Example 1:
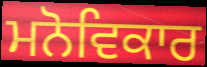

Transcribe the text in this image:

ਮਨੋਵਿਕਾਰ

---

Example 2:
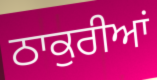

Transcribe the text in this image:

ਠਾਕੁਰੀਆਂ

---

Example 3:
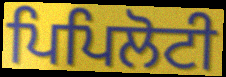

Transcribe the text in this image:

ਪਿਪਿਲੋਟੀ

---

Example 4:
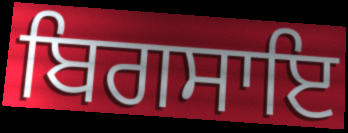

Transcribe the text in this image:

ਬਿਗਸਾਇ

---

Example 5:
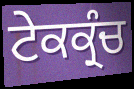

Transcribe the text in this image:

ਟੇਕਕ੍ਰੰਚ